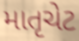
માતૃચેટ